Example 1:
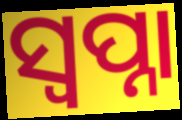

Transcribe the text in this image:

ସ୍ଵପ୍ନା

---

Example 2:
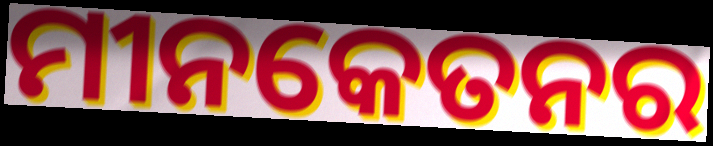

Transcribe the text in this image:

ମୀନକେତନର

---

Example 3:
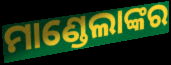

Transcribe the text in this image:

ମାଣ୍ଡେଲାଙ୍କର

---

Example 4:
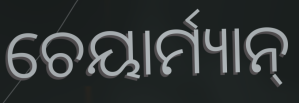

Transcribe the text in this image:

ଚେୟାର୍ମ୍ୟାନ୍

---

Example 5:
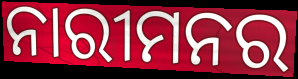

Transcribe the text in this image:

ନାରୀମନର